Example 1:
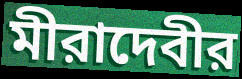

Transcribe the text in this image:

মীরাদেবীর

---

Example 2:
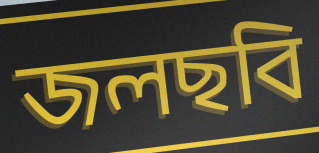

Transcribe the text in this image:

জলছবি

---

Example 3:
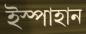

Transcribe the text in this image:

ইস্পাহান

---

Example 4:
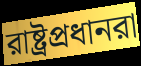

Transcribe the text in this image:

রাষ্ট্রপ্রধানরা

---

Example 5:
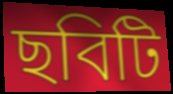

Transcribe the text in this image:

ছবিটি